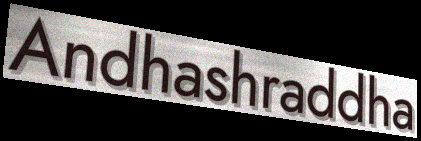
Andhashraddha